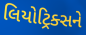
લિયોટ્રિક્સને